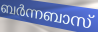
ബർന്നബാസ്